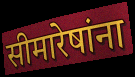
सीमारेषांना